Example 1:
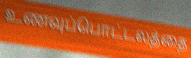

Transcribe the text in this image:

உணவுப்பொட்டலத்தை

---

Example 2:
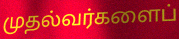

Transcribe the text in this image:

முதல்வர்களைப்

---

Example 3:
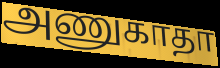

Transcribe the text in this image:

அணுகாதா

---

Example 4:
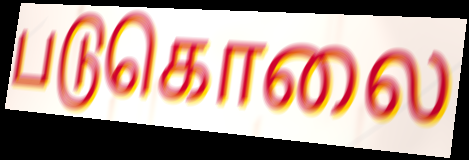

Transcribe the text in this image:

படுகொலை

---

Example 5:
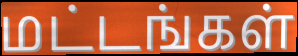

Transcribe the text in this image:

மட்டங்கள்